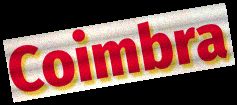
Coimbra